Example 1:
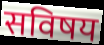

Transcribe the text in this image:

सविषय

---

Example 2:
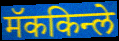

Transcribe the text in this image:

मॅककिन्ले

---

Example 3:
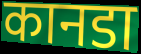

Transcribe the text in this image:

कानडा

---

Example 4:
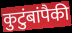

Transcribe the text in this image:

कुटुंबांपैकी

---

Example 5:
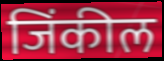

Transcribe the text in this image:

जिंकील